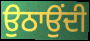
ਉਠਾਉਂਦੀ